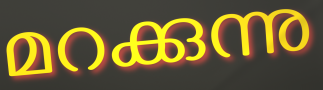
മറക്കുന്നു